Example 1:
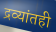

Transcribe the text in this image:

द्रव्यांतही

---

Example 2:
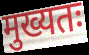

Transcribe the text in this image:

मुख्यतः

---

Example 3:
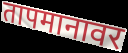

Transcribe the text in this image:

तापमानावर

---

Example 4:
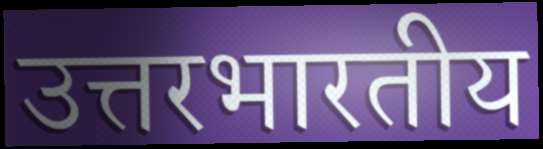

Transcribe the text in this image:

उत्तरभारतीय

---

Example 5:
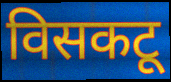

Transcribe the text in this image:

विसकटू